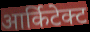
आर्किटेक्ट